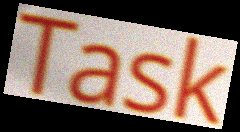
Task